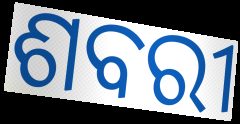
ଶବରୀ